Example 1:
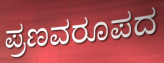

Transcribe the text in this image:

ಪ್ರಣವರೂಪದ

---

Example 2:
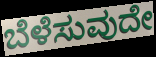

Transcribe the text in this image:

ಬೆಳೆಸುವುದೇ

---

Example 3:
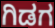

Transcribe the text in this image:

ಗಿಡಗ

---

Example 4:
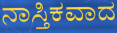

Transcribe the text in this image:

ನಾಸ್ತಿಕವಾದ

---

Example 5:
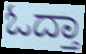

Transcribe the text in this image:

ಓದ್ತಾ